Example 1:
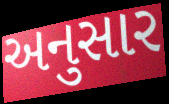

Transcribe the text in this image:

અનુસાર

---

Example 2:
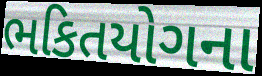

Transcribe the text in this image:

ભકિતયોગના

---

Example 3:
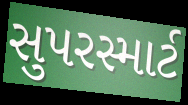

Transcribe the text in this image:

સુપરસ્માર્ટ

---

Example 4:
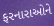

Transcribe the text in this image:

ફરનારાઓને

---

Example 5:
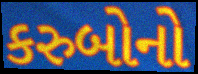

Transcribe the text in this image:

કરુબોનો